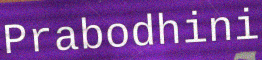
Prabodhini